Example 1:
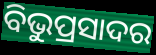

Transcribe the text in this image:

ବିଭୁପ୍ରସାଦର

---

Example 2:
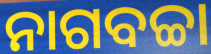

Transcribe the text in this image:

ନାଗବଚ୍ଚା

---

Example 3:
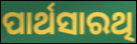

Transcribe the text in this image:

ପାର୍ଥସାରଥି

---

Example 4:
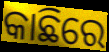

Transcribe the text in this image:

କାଛିରେ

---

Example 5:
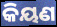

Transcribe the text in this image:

କିୟଣ